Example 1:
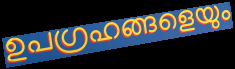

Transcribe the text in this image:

ഉപഗ്രഹങ്ങളെയും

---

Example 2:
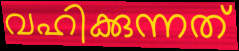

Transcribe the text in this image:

വഹിക്കുന്നത്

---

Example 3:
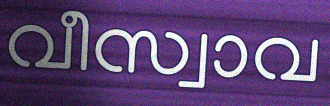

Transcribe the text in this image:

വീസ്വാവ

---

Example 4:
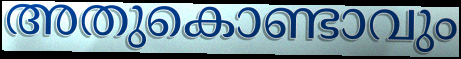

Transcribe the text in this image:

അതുകൊണ്ടാവും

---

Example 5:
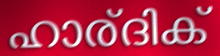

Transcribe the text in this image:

ഹാര്ദിക്